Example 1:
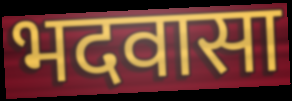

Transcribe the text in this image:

भदवासा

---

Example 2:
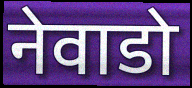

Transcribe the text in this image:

नेवाडो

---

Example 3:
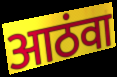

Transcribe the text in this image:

आठंवा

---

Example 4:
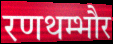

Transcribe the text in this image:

रणथम्भौर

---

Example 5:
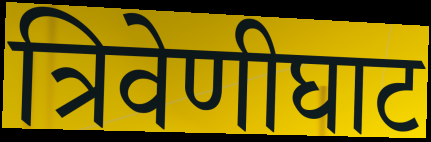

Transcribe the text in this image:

त्रिवेणीघाट